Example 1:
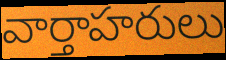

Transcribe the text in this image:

వార్తాహరులు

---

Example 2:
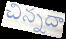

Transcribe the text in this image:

చిన్నదా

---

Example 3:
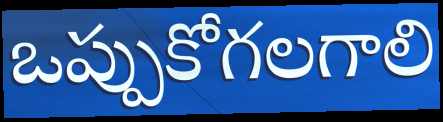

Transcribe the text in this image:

ఒప్పుకోగలగాలి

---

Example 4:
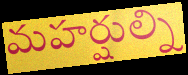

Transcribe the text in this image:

మహర్షుల్ని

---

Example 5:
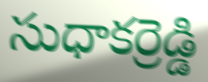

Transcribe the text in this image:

సుధాకర్రెడ్డి